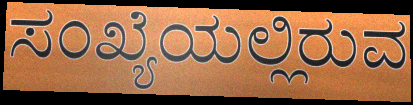
ಸಂಖ್ಯೆಯಲ್ಲಿರುವ